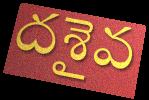
దశైవ